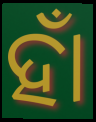
ହାଁ